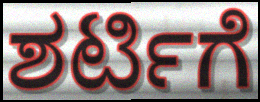
ಶರ್ಟಿಗೆ